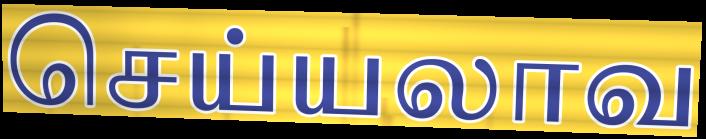
செய்யலாவ